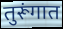
तुरूंगात